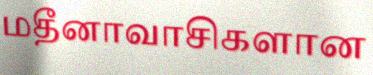
மதீனாவாசிகளான